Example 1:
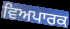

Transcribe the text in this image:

ਵਿਅਪਾਰਕ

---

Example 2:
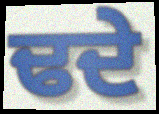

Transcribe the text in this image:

ਢਦੇ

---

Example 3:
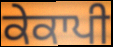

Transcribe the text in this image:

ਕੇਕਾਪੀ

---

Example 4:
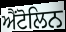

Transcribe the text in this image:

ਐਂਟੋਲਿਨ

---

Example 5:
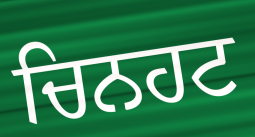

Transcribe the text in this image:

ਚਿਨਹਟ